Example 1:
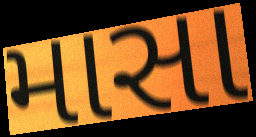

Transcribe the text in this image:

માસા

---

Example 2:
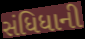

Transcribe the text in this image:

સંધિધાની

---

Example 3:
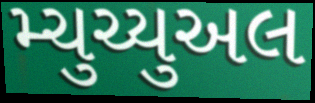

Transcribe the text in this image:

મ્ચુચ્યુઅલ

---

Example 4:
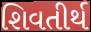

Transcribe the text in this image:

શિવતીર્થ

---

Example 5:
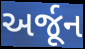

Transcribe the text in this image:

અર્જૂન